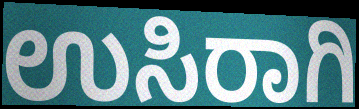
ಉಸಿರಾಗಿ